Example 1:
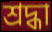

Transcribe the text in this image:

শ্ৰদ্ধা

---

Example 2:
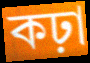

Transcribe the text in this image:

কঢ়া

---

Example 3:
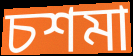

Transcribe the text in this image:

চশমা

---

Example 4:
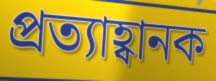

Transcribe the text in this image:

প্ৰত্যাহ্বানক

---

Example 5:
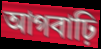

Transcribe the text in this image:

আগবাঢ়ি